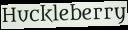
Huckleberry